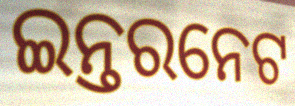
ଇନ୍ତରନେଟ